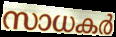
സാധകർ